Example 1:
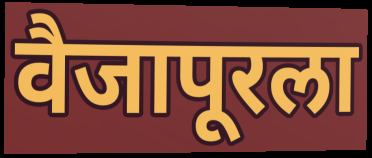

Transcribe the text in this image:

वैजापूरला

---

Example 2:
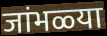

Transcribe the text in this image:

जांभळ्या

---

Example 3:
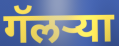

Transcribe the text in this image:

गॅलऱ्या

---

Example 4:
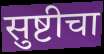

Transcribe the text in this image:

सुष्टीचा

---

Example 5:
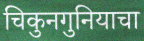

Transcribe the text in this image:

चिकुनगुनियाचा